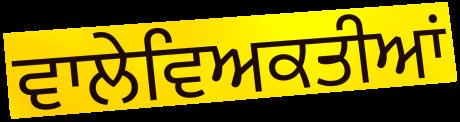
ਵਾਲੇਵਿਅਕਤੀਆਂ